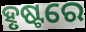
ହୃଷ୍ଟରେ